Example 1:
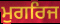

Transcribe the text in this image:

ਮੁਗਰਿਜ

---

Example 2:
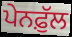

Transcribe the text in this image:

ਪੇਨਫ਼ੁੱਲ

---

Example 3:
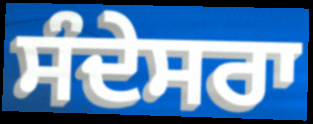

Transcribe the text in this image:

ਸੰਦੇਸਰਾ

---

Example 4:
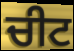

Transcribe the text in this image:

ਚੀਟ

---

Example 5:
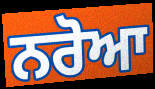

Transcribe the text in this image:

ਨਰੋਆ